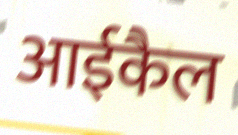
आईकैल